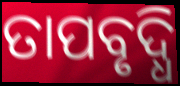
ତାପବୃଦ୍ଧି